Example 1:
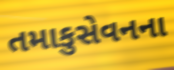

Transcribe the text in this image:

તમાકુસેવનના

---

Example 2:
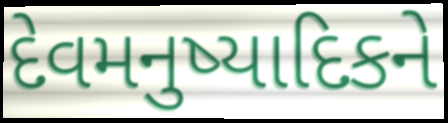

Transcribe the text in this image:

દેવમનુષ્યાદિકને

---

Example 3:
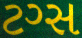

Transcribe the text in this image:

ટગ્સ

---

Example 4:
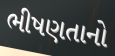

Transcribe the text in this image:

ભીષણતાનો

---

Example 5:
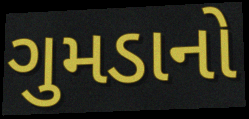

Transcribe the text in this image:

ગુમડાનો